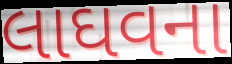
લાઘવના